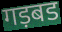
गड़बड